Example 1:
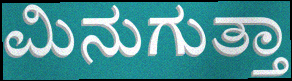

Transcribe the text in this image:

ಮಿನುಗುತ್ತಾ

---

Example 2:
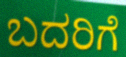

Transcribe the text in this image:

ಬದರಿಗೆ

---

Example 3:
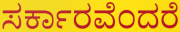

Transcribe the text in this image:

ಸರ್ಕಾರವೆಂದರೆ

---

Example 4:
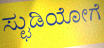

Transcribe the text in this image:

ಸ್ಟುಡಿಯೋಗೆ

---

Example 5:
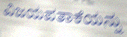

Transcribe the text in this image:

ವಿಜಯಪತಾಕೆಯನ್ನು